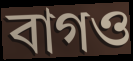
বাগও